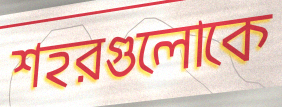
শহরগুলোকে